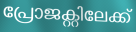
പ്രോജക്റ്റിലേക്ക്